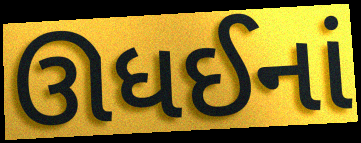
ઊધઈનાં